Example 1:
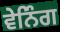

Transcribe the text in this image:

ਵੇਨਿੰਗ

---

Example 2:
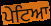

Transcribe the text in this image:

ਪੇਟਿਆ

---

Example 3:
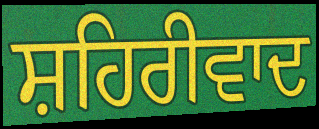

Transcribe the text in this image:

ਸ਼ਹਿਰੀਵਾਦ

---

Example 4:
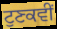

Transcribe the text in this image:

ਟੁਣਕਵੀਂ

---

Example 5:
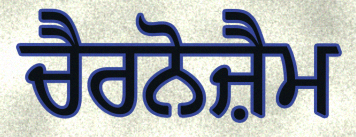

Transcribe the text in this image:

ਚੈਰਨੋਜ਼ੈਮ